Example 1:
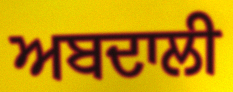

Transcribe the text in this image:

ਅਬਦਾਲੀ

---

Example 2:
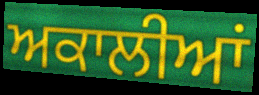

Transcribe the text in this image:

ਅਕਾਲੀਆਂ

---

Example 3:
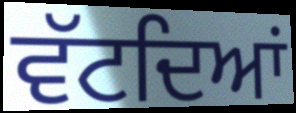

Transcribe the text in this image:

ਵੱਟਦਿਆਂ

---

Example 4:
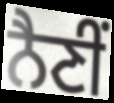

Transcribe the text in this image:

ਨੈਣੀਂ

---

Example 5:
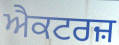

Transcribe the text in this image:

ਐਕਟਰਜ਼